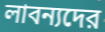
লাবন্যদের